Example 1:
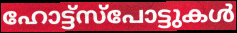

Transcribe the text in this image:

ഹോട്ട്സ്പോട്ടുകൾ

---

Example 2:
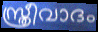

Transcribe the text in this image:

സ്ത്രീവാദം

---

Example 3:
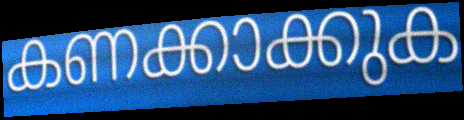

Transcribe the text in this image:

കണക്കാക്കുക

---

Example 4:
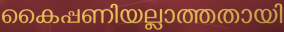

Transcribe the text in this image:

കൈപ്പണിയല്ലാത്തതായി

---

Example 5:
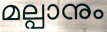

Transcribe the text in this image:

മല്പാനും